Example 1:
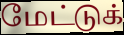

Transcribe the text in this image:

மேட்டுக்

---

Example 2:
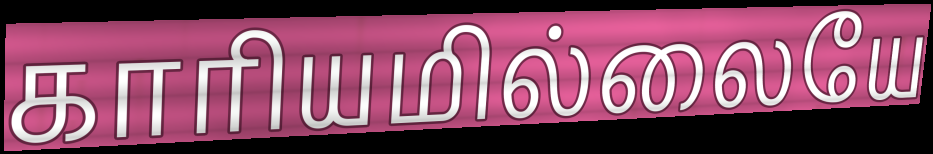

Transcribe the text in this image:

காரியமில்லையே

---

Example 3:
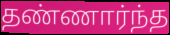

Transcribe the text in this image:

தண்ணார்ந்த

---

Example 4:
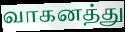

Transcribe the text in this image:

வாகனத்து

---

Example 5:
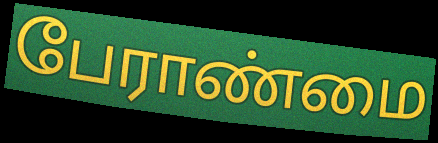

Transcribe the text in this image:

பேராண்மை